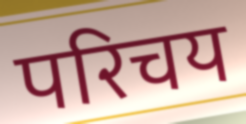
परिचय